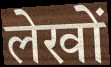
लेखों